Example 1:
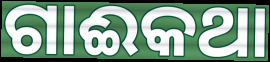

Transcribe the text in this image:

ଗାଈକଥା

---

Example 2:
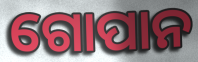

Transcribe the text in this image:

ଗୋପାନ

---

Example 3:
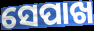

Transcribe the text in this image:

ସେପାଖ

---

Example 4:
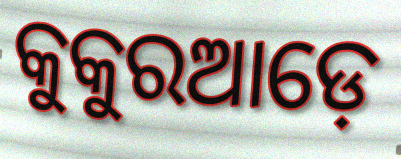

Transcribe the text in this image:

କୁକୁରଆଡ଼େ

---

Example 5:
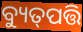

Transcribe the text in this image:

ବ୍ୟୁତ୍‌ପତ୍ତି